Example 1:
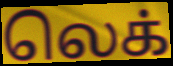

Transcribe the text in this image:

லெக்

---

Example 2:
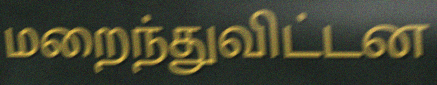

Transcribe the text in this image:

மறைந்துவிட்டன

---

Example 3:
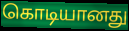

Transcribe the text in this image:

கொடியானது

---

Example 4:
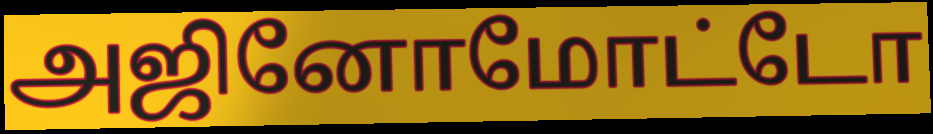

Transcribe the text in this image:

அஜினோமோட்டோ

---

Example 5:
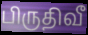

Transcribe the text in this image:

பிருதிவீ